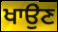
ਖਾਉਣ